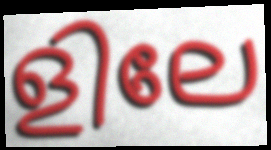
ളിലേ